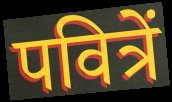
पवित्रें